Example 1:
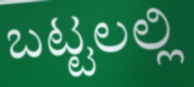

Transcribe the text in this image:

ಬಟ್ಟಲಲ್ಲಿ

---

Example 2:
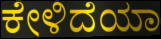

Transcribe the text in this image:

ಕೇಳಿದೆಯಾ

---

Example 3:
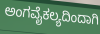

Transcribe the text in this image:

ಅಂಗವೈಕಲ್ಯದಿಂದಾಗಿ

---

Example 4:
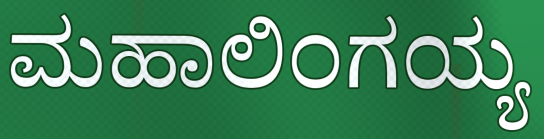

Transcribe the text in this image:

ಮಹಾಲಿಂಗಯ್ಯ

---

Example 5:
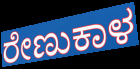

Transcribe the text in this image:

ರೇಣುಕಾಳ